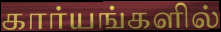
கார்யங்களில்